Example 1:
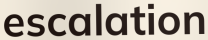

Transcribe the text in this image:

escalation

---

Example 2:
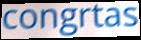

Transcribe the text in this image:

congrtas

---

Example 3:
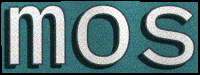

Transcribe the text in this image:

mos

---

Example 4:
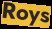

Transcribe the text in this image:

Roys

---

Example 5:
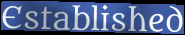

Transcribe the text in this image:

Established